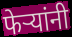
फेऱ्यांनी